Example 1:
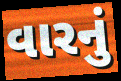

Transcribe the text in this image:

વારનું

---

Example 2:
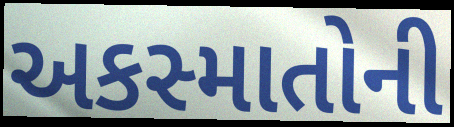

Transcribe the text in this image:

અકસ્માતોની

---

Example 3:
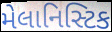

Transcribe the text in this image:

મેલાનિસ્ટિક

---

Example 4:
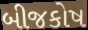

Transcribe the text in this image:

બીજકોષ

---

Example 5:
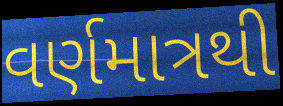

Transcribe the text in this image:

વર્ણમાત્રથી